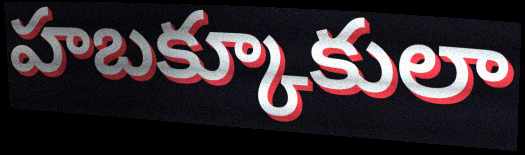
హబక్కూకులా